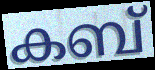
കബ്